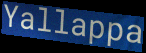
Yallappa